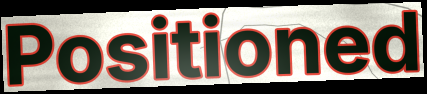
Positioned